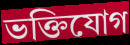
ভক্তিযোগ